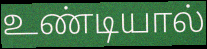
உண்டியால்